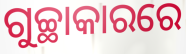
ଗୁଚ୍ଛାକାରରେ